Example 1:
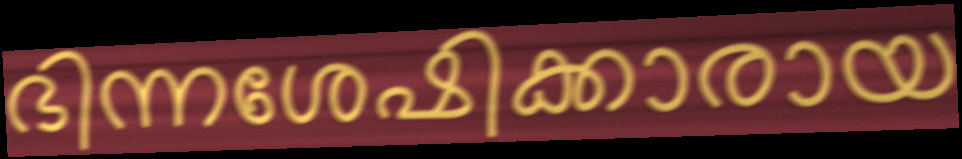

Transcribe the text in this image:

ഭിന്നശേഷിക്കാരായ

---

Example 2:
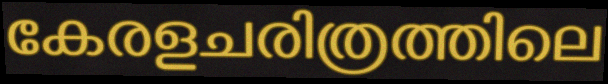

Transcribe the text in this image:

കേരളചരിത്രത്തിലെ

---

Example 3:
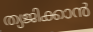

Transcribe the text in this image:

ത്യജിക്കാൻ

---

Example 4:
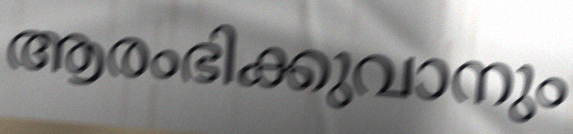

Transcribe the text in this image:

ആരംഭിക്കുവാനും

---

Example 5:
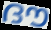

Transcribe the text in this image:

ദൗ